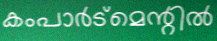
കംപാർട്മെന്റിൽ